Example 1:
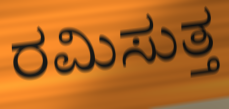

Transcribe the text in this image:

ರಮಿಸುತ್ತ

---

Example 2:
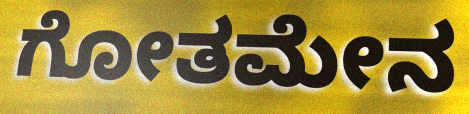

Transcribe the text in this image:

ಗೋತಮೇನ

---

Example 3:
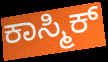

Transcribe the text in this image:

ಕಾಸ್ಮಿಕ್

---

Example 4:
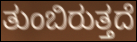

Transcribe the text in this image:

ತುಂಬಿರುತ್ತದೆ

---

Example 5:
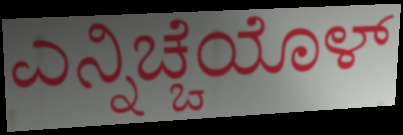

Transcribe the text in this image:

ಎನ್ನಿಚ್ಚೆಯೊಳ್